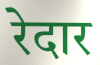
रेदार